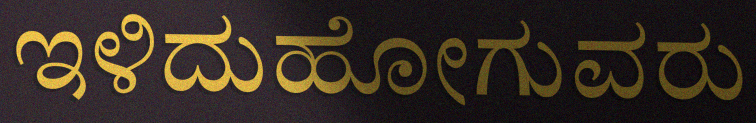
ಇಳಿದುಹೋಗುವರು